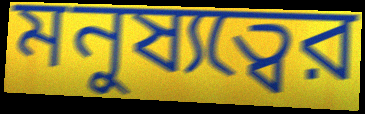
মনুষ্যত্বের